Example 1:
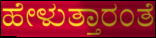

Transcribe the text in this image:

ಹೇಳುತ್ತಾರಂತೆ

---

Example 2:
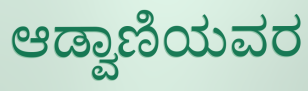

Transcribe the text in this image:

ಆಡ್ವಾಣಿಯವರ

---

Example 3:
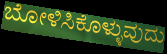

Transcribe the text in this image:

ಬೋಳಿಸಿಕೊಳ್ಳುವುದು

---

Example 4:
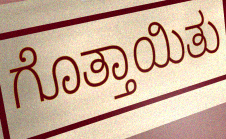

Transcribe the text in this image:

ಗೊತ್ತಾಯಿತು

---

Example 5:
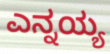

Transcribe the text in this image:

ಎನ್ನಯ್ಯ